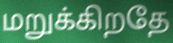
மறுக்கிறதே